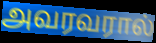
அவரவரால்